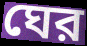
ঘের